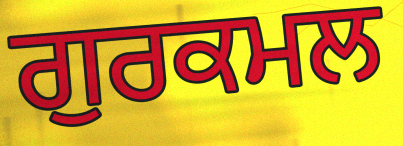
ਗੁਰਕਮਲ